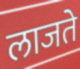
लाजते